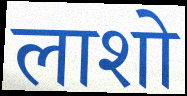
लाशो